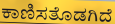
ಕಾಣಿಸತೊಡಗಿದೆ